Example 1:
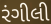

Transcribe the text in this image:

રંગીલી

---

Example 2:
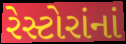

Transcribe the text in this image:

રેસ્ટોરાંનાં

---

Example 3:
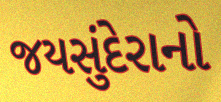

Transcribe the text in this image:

જયસુંદેરાનો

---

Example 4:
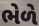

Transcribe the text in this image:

ભેળે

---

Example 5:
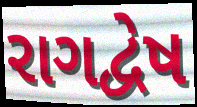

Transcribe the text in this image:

રાગદ્વેષ